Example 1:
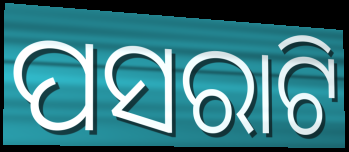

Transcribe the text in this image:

ପସରାଟି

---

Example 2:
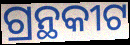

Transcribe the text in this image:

ଗ୍ରନ୍ଥକୀଟ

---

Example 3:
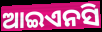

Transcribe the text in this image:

ଆଇଏନସି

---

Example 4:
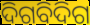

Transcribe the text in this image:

ଦିଗବିଦିଗ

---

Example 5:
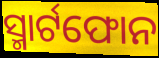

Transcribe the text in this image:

ସ୍ମାର୍ଟଫୋନ